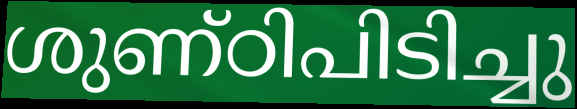
ശുണ്ഠിപിടിച്ചു